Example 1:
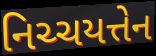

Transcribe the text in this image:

નિચ્ચયત્તેન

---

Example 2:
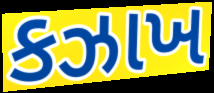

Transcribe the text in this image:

કઝાખ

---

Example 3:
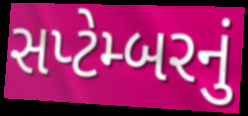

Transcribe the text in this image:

સપ્ટેમ્બરનું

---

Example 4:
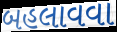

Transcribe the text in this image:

બહલાવવા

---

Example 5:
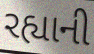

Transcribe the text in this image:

રહ્યાની